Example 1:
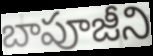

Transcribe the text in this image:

బాపూజీని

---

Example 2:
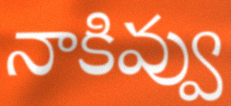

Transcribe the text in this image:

నాకివ్వు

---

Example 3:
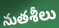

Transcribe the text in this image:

నుతశీలు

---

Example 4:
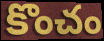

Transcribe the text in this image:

కొంచం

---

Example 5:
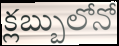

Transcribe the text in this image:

క్లబ్బులోనో